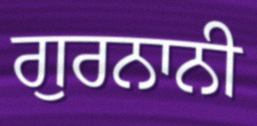
ਗੁਰਨਾਨੀ